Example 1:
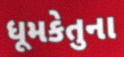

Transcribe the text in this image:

ધૂમકેતુના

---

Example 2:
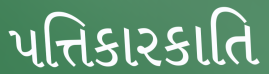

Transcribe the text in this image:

પત્તિકારકાતિ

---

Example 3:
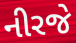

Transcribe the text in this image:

નીરજે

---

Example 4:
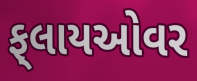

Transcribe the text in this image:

ફ્‌લાયઓવર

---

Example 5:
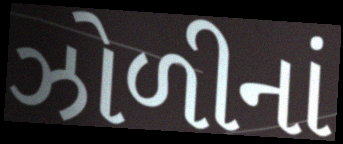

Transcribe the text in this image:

ઝોળીનાં